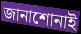
জানাশোনাই